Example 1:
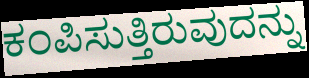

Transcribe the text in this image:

ಕಂಪಿಸುತ್ತಿರುವುದನ್ನು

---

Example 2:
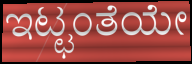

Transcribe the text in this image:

ಇಟ್ಟಂತೆಯೇ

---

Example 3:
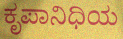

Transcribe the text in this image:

ಕೃಪಾನಿಧಿಯ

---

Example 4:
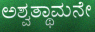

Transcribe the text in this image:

ಅಶ್ವತ್ಥಾಮನೇ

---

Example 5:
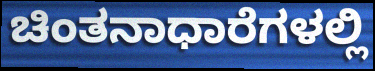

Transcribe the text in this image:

ಚಿಂತನಾಧಾರೆಗಳಲ್ಲಿ